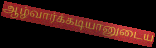
ஆழ்வார்க்கடியானுடைய